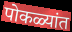
पोकळ्यांत